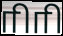
ரிரி